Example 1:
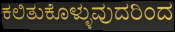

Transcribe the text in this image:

ಕಲಿತುಕೊಳ್ಳುವುದರಿಂದ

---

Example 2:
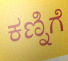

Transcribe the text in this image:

ಕಣ್ನಿಗೆ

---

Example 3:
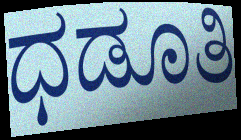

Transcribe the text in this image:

ಧಡೂತಿ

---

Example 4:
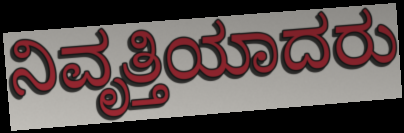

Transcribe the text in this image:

ನಿವೃತ್ತಿಯಾದರು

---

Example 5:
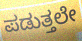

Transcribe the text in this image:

ಪಡುತ್ತಲೇ